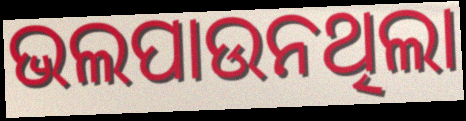
ଭଲପାଉନଥିଲା